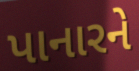
પાનારને